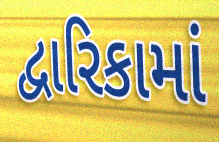
દ્વારિકામાં